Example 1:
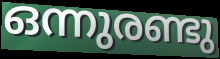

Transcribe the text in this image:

ഒന്നുരണ്ടു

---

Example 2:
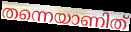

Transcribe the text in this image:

തന്നെയാണിത്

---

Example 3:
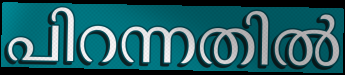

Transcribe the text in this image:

പിറന്നതിൽ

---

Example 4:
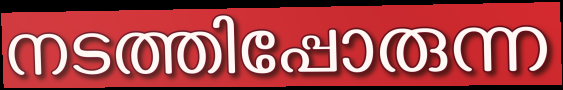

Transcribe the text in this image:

നടത്തിപ്പോരുന്ന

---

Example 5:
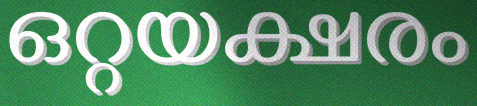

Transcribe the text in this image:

ഒറ്റയക്ഷരം